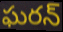
ఘరన్